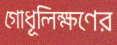
গোধূলিক্ষণের